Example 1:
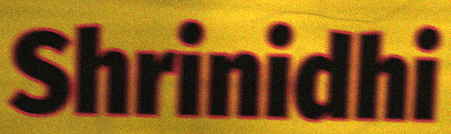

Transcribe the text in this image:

Shrinidhi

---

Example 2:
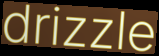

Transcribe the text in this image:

drizzle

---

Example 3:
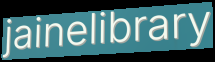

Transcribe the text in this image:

jainelibrary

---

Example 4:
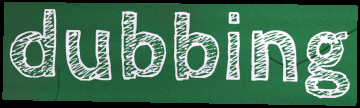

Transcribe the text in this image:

dubbing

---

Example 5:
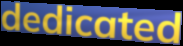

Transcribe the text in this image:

dedicated